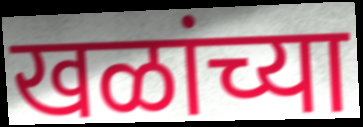
खळांच्या